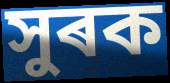
সুৰক